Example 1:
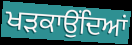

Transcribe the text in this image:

ਖੜਕਾਉਂਦਿਆਂ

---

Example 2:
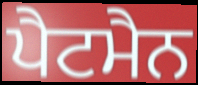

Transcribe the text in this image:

ਪੈਟਮੈਨ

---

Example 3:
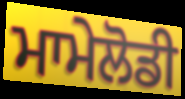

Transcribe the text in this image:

ਮਾਮੇਲੋਡੀ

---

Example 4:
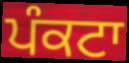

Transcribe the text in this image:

ਪੰਕਟਾ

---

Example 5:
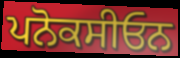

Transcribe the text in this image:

ਪਨੋਕਸੀਓਨ